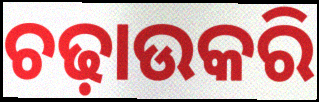
ଚଢ଼ାଉକରି